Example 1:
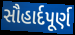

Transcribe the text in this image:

સૌહાર્દપૂર્ણ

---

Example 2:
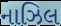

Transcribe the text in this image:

નાઝિલ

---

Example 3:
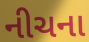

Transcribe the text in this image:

નીચના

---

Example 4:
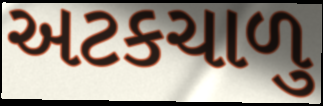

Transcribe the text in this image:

અટકચાળુ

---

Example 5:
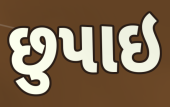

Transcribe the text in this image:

છુપાઇ